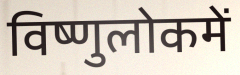
विष्णुलोकमें